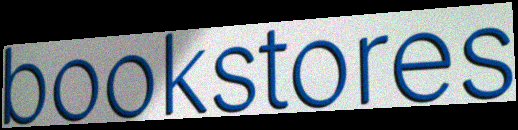
bookstores